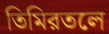
তিমিরতলে